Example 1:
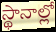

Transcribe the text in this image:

స్థానాల్లో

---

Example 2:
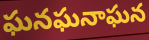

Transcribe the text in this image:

ఘనఘనాఘన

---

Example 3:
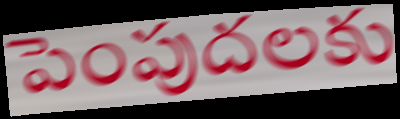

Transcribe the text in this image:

పెంపుదలకు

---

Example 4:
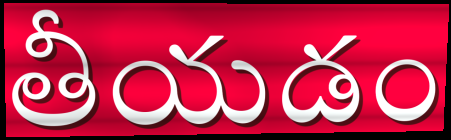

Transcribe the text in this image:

తీయడం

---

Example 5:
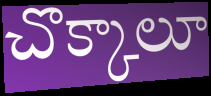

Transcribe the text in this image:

చొక్కాలూ